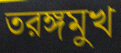
তরঙ্গমুখ